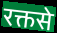
रक्तसे